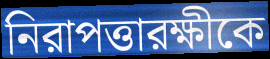
নিরাপত্তারক্ষীকে